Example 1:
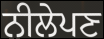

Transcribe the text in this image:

ਨੀਲੇਪਣ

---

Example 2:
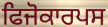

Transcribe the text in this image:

ਫਿਜੋਕਾਰਪਸ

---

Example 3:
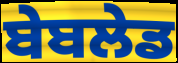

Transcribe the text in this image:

ਬੇਬਲੇਡ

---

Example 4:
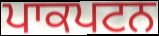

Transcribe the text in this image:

ਪਾਕਪਟਨ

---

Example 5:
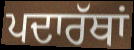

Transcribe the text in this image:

ਪਦਾਰੱਥਾਂ